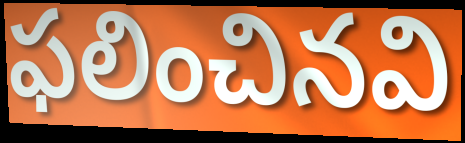
ఫలించినవి